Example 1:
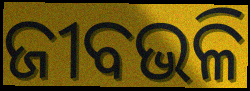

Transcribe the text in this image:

ଜୀବଭଳି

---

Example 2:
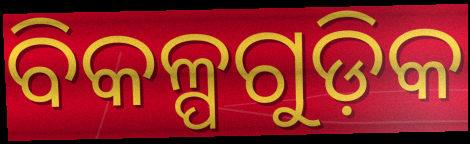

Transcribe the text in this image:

ବିକଳ୍ପଗୁଡ଼ିକ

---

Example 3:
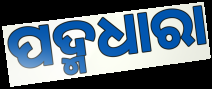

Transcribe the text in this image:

ପଦ୍ମଧାରା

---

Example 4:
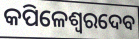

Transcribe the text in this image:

କପିଳେଶ୍ୱରଦେବ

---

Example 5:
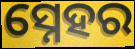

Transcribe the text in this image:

ସ୍ନେହର